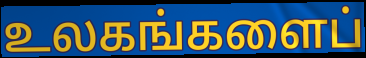
உலகங்களைப்